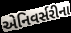
એનિવર્સરીના